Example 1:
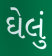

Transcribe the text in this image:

ઘેલું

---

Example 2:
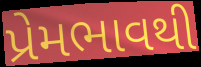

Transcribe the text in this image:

પ્રેમભાવથી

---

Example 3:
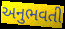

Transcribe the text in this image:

અનુભવતી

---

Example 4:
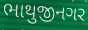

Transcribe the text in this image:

ભાથુજીનગર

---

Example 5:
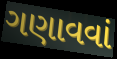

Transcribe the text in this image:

ગણાવવાં